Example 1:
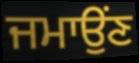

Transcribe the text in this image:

ਜਮਾਉਂਣ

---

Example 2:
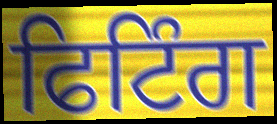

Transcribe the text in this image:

ਫਿਟਿੰਗ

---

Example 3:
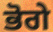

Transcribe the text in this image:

ਭੋਗੇ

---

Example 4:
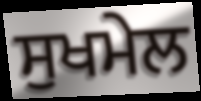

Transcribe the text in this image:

ਸੁਖਮੇਲ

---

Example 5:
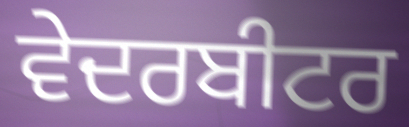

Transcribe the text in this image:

ਵੇਦਰਬੀਟਰ